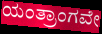
ಯಂತ್ರಾಂಗವೇ